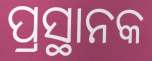
ପ୍ରସ୍ଥାନକ